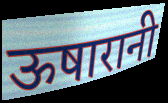
ऊषारानी